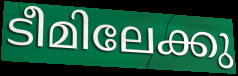
ടീമിലേക്കു